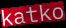
katko